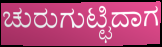
ಚುರುಗುಟ್ಟಿದಾಗ